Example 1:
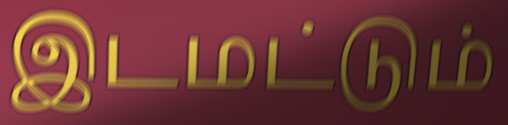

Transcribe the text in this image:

இடமட்டும்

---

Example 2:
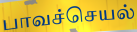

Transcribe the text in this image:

பாவச்செயல்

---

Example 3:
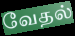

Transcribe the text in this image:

வேதல்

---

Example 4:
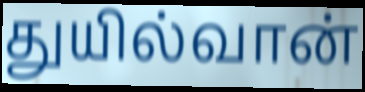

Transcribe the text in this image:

துயில்வான்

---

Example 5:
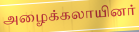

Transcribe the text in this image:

அழைக்கலாயினர்